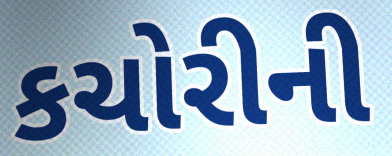
કચોરીની